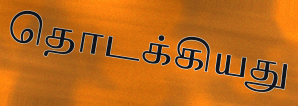
தொடக்கியது